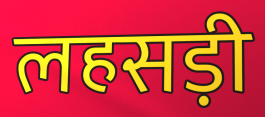
लहसड़ी